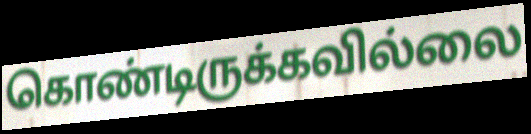
கொண்டிருக்கவில்லை